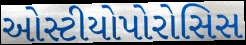
ઓસ્ટીયોપોરોસિસ